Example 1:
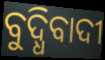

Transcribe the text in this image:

ବୁଦ୍ଧିବାଦୀ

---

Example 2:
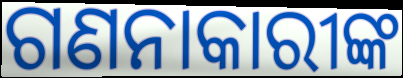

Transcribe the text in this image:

ଗଣନାକାରୀଙ୍କ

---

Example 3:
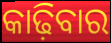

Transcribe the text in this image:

କାଢ଼ିବାର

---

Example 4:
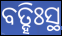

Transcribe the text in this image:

ବତ୍ହିଃସ୍ଥ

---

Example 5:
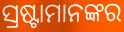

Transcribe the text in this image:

ସ୍ରଷ୍ଟାମାନଙ୍କର